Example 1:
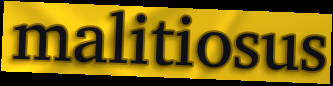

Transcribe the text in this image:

malitiosus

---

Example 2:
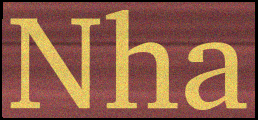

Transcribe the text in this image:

Nha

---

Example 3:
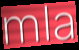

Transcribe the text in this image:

mla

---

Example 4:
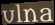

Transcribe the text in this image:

ulna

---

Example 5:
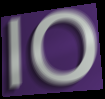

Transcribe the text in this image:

IO